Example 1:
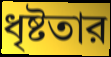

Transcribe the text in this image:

ধৃষ্টতার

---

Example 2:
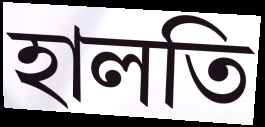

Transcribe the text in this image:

হালতি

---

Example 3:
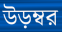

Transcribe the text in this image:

উড়ম্বর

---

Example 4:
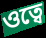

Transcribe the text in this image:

ওত্বে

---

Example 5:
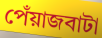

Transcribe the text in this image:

পেঁয়াজবাটা